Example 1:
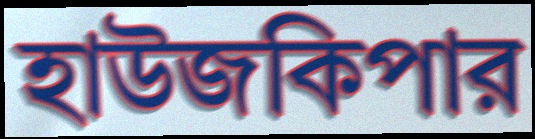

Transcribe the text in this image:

হাউজকিপার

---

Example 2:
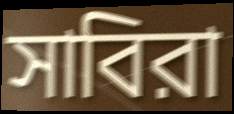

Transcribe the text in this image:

সাবিরা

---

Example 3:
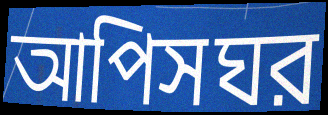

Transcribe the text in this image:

আপিসঘর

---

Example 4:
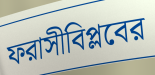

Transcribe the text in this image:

ফরাসীবিপ্লবের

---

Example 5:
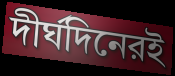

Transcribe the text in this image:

দীর্ঘদিনেরই